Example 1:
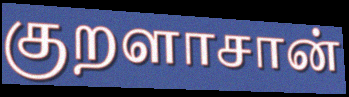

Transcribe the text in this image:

குறளாசான்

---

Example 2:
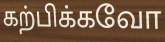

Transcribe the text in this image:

கற்பிக்கவோ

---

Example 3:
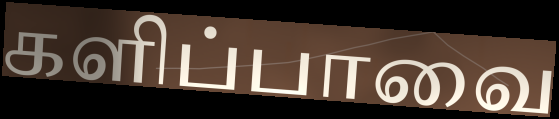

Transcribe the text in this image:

களிப்பாவை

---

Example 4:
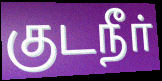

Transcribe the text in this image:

குடநீர்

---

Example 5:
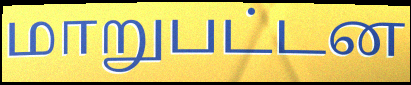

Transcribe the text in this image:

மாறுபட்டன